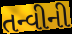
તન્વીની